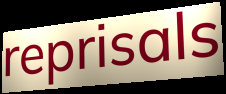
reprisals